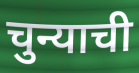
चुन्याची